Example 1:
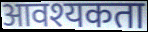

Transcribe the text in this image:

आवश्‍यकता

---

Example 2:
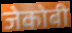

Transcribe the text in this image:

जेकोबी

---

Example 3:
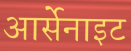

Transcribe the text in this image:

आर्सेनाइट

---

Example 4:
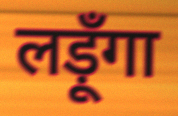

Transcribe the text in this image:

लड़ूँगा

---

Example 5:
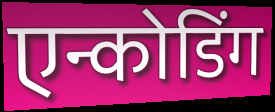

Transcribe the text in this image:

एन्कोडिंग